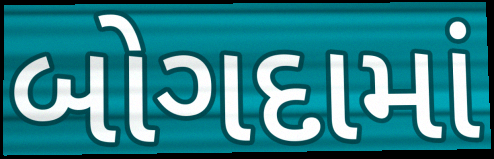
બોગદામાં